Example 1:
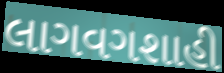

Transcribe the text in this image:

લાગવગશાહી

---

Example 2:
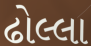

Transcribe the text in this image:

ઢોલ્લા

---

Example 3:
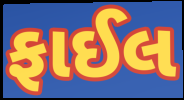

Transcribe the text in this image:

ફાઈલ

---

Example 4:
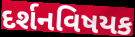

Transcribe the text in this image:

દર્શનવિષયક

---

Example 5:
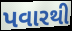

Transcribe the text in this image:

પવારથી